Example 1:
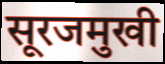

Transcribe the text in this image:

सूरजमुखी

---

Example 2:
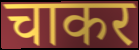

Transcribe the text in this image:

चाकर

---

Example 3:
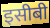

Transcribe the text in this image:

इसीबी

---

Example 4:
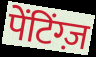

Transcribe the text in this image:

पेंटिंग्ज़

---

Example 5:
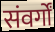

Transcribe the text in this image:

संवर्गों